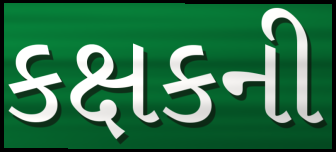
કક્ષકની